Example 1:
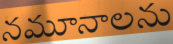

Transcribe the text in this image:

నమూనాలను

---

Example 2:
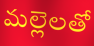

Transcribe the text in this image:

మల్లెలతో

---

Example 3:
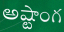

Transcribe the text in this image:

అష్టాంగ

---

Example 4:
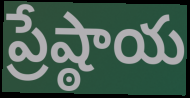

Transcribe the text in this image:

ప్రేష్ఠాయ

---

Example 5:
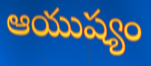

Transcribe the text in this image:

ఆయుష్యం